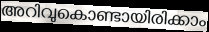
അറിവുകൊണ്ടായിരിക്കാം